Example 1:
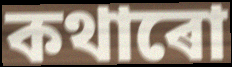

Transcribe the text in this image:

কথাৰো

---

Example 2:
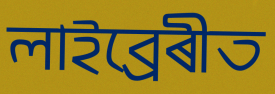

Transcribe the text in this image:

লাইব্ৰেৰীত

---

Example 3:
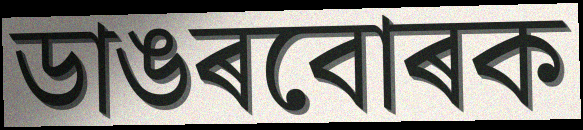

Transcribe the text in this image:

ডাঙৰবোৰক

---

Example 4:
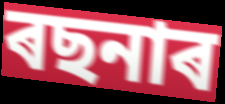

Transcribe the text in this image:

ৰছনাৰ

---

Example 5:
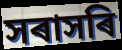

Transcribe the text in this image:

সৰাসৰি